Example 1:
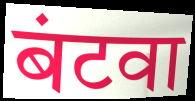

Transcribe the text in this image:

बंटवा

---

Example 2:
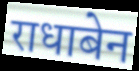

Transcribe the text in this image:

राधाबेन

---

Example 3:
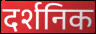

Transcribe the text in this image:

दर्शनिक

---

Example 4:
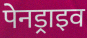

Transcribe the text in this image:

पेनड्राइव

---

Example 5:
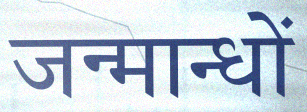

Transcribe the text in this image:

जन्मान्धों